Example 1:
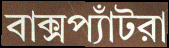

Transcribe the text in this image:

বাক্সপ্যাঁটরা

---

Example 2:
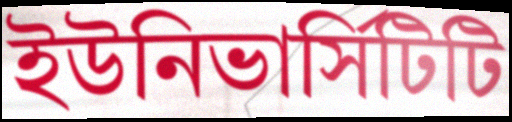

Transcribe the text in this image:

ইউনিভার্সিটিটি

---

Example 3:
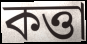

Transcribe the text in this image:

কত্তা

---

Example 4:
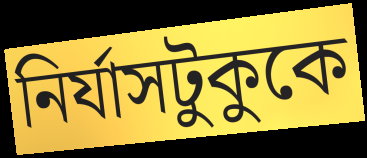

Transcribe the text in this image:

নির্যাসটুকুকে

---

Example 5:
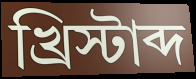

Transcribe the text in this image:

খ্রিস্টাব্দ